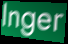
Inger